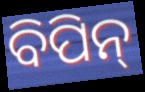
ବିପିନ୍